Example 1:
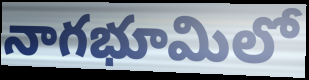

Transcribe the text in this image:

నాగభూమిలో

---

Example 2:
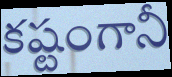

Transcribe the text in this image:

కష్టంగానీ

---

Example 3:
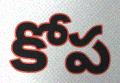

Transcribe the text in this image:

కోప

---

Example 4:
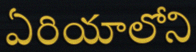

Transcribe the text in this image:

ఏరియాలోని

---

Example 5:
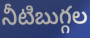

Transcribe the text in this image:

నీటిబుగ్గల